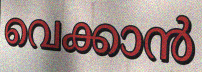
വെക്കാൻ